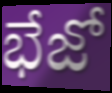
భేజో